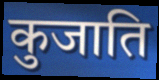
कुजाति